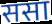
ससा